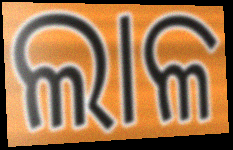
ଲାଳ